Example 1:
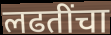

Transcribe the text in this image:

लढतींचा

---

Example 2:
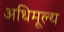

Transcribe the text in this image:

अधिमूल्य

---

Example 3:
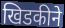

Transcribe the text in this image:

खिडकीने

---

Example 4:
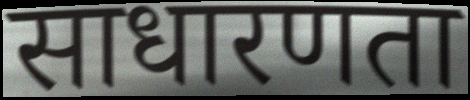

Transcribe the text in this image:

साधारणता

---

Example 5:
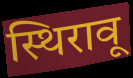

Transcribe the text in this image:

स्थिरावू